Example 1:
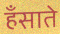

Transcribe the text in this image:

हँसाते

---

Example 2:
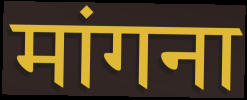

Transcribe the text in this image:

मांगना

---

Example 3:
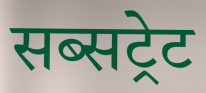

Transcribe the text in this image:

सब्सट्रेट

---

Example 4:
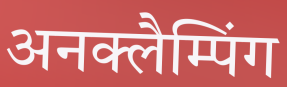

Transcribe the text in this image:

अनक्लैम्पिंग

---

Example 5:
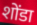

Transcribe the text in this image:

शोंडा